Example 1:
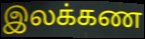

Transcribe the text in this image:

இலக்கண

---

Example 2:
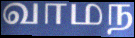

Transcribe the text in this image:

வாமந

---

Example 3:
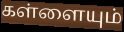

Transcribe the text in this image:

கள்ளையும்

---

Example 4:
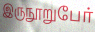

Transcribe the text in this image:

இருநூறுபேர்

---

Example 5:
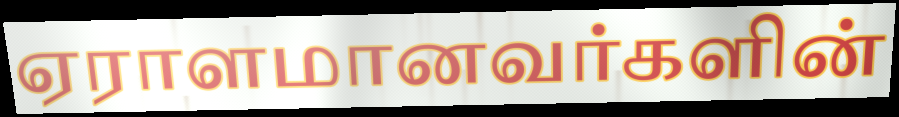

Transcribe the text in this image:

ஏராளமானவர்களின்